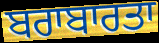
ਬਰਾਬਾਰਤਾ